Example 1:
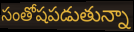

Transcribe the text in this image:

సంతోషపడుతున్నా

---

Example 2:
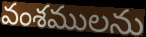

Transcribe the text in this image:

వంశములను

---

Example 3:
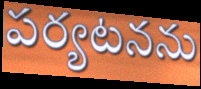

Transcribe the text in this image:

పర్యటనను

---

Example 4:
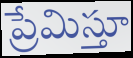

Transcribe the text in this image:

ప్రేమిస్తూ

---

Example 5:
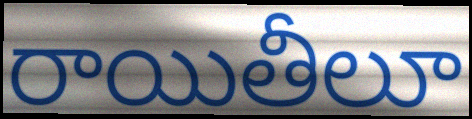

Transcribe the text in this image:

రాయితీలూ